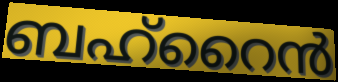
ബഹ്റൈൻ